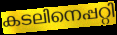
കടലിനെപ്പറ്റി